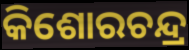
କିଶୋରଚନ୍ଦ୍ର